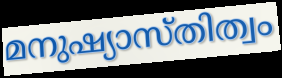
മനുഷ്യാസ്തിത്വം